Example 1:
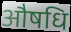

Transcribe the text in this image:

औषधि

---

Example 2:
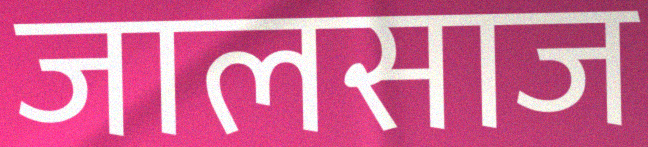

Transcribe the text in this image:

जालसाज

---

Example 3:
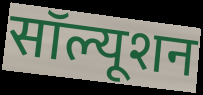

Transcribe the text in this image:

सॉल्यूशन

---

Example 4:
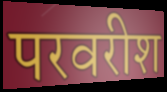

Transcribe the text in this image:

परवरीश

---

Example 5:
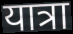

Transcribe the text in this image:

यात्रा